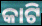
କାଟି